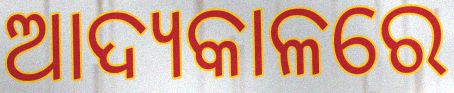
ଆଦ୍ୟକାଳରେ